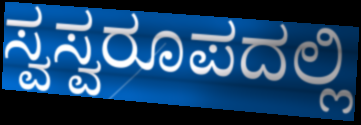
ಸ್ವಸ್ವರೂಪದಲ್ಲಿ